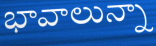
భావాలున్నా